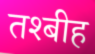
तश्बीह